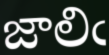
జాలిఁ